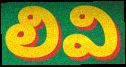
లివి